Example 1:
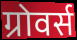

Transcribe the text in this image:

ग्रोवर्स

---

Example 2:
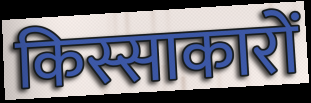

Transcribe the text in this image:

किस्साकारों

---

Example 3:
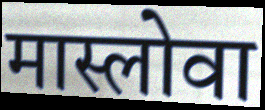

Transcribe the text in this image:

मास्लोवा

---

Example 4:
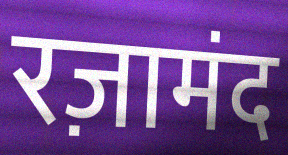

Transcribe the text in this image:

रज़ामंद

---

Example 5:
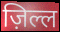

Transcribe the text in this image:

ज़िल्ल